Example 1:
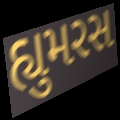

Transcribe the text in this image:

હ્યુમરસ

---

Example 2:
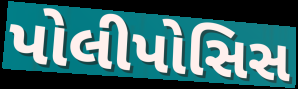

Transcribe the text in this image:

પોલીપોસિસ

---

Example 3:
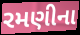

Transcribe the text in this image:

રમણીના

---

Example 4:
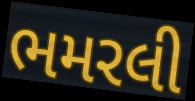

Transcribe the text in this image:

ભમરલી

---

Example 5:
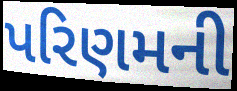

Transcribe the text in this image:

પરિણમની